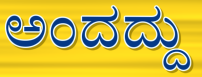
ಅಂದದ್ದು